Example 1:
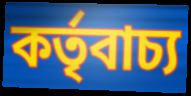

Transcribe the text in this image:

কর্তৃবাচ্য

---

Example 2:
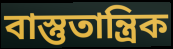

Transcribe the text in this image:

বাস্তুতান্ত্রিক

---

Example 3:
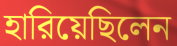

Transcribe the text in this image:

হারিয়েছিলেন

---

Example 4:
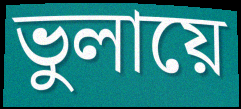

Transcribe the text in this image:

ভুলায়ে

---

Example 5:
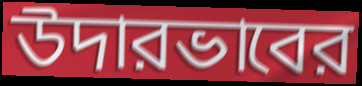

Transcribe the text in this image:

উদারভাবের